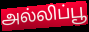
அல்லிப்பூ